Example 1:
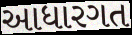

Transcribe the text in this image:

આધારગત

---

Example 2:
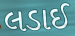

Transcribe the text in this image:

લડાઈ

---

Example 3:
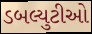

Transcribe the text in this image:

ડબલ્યુટીઓ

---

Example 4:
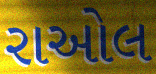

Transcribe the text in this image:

રાઓલ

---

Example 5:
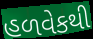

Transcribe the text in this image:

હળવેકથી